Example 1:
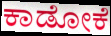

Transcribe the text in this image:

ಕಾಡೋಕೆ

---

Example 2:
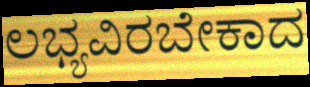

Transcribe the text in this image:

ಲಭ್ಯವಿರಬೇಕಾದ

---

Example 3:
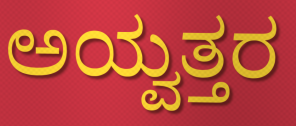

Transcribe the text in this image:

ಅಯ್ವತ್ತರ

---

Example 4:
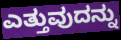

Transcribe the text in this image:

ಎತ್ತುವುದನ್ನು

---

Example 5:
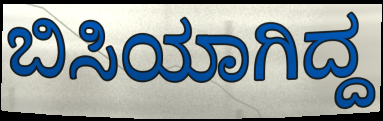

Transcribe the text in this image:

ಬಿಸಿಯಾಗಿದ್ದ